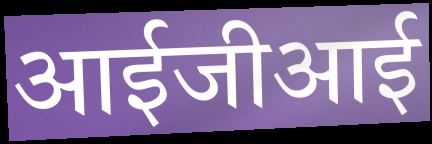
आईजीआई